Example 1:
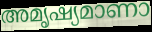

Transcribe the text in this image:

അമൃഷ്യമാണാ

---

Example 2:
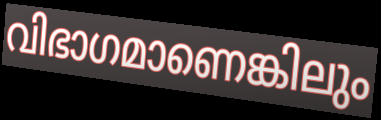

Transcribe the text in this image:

വിഭാഗമാണെങ്കിലും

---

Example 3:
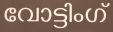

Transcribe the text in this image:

വോട്ടിംഗ്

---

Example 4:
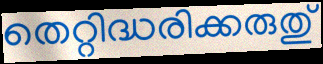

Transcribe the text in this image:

തെറ്റിദ്ധരിക്കരുതു്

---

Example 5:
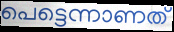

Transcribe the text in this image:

പെട്ടെന്നാണത്